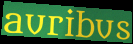
auribus